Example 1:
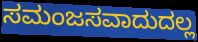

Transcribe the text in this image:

ಸಮಂಜಸವಾದುದಲ್ಲ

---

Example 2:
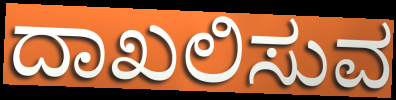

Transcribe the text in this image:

ದಾಖಲಿಸುವ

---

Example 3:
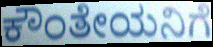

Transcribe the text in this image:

ಕೌಂತೇಯನಿಗೆ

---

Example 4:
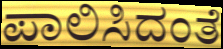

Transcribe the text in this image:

ಪಾಲಿಸಿದಂತೆ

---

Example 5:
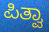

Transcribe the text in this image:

ಪಿತ್ವಾ